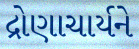
દ્રોણાચાર્યને